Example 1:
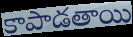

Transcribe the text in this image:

కాపాడతాయి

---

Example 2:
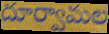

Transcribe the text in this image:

దూర్వామల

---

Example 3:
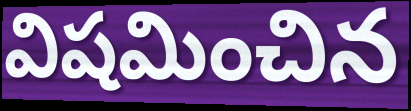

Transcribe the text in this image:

విషమించిన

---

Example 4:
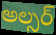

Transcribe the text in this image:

అల్సర్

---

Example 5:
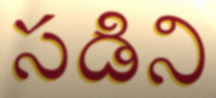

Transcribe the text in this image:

సడిని